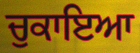
ਚੁਕਾਇਆ